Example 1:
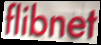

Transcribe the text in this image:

flibnet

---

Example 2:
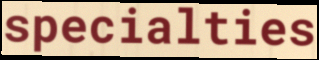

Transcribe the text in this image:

specialties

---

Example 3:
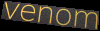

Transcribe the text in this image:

venom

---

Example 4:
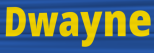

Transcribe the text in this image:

Dwayne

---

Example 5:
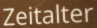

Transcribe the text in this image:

Zeitalter